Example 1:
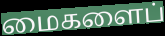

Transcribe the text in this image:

மைகளைப்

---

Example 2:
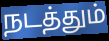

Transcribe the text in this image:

நடத்தும்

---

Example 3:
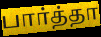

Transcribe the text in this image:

பார்த்தா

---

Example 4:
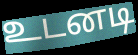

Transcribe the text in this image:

உடனடி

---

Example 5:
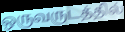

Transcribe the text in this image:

ஒருவருடத்தில்